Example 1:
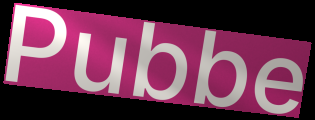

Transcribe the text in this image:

Pubbe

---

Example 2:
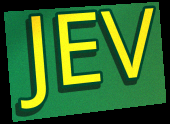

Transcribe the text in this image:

JEV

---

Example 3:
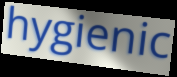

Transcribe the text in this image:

hygienic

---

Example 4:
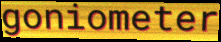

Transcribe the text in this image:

goniometer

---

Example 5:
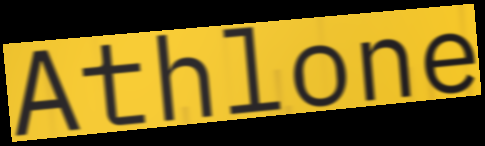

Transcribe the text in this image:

Athlone